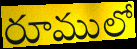
రూములో